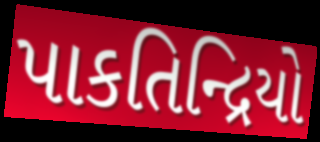
પાકતિન્દ્રિયો